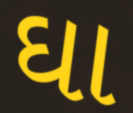
ઘા